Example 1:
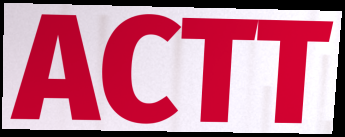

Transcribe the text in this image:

ACTT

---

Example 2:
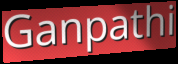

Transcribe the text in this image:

Ganpathi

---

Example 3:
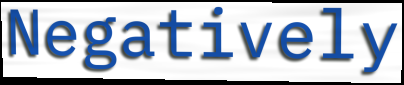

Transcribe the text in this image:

Negatively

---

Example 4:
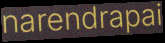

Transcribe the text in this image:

narendrapai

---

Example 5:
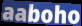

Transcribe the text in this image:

aaboho